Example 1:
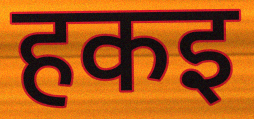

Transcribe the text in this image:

हकइ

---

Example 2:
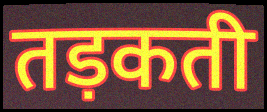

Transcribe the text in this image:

तड़कती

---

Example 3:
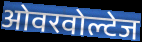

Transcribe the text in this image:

ओवरवोल्टेज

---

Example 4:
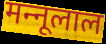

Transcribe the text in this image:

मन्नूलाल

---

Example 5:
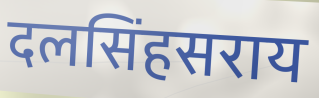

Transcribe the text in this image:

दलसिंहसराय